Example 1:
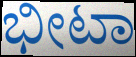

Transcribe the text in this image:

ಭೀಟಾ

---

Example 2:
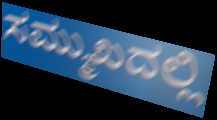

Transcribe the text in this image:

ಸಮ್ಮುಖದಲ್ಲಿ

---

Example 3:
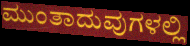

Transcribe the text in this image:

ಮುಂತಾದುವುಗಳಲ್ಲಿ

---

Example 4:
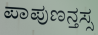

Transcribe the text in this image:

ಪಾಪುಣನ್ತಸ್ಸ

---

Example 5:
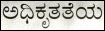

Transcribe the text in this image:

ಅಧಿಕೃತತೆಯ